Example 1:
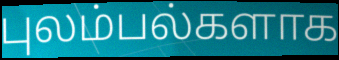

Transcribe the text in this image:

புலம்பல்களாக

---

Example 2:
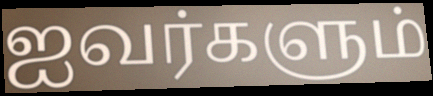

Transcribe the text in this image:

ஐவர்களும்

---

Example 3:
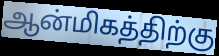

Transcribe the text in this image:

ஆன்மிகத்திற்கு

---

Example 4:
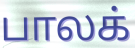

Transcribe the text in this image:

பாலக்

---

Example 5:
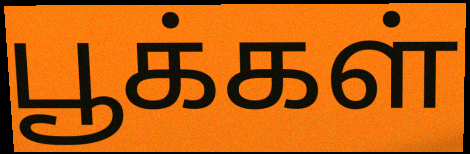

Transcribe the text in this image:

பூக்கள்